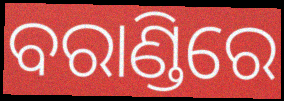
ବରାଣ୍ଡିରେ